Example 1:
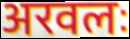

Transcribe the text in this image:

अरवलः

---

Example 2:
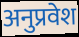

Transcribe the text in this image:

अनुप्रवेश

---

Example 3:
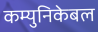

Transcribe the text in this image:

कम्युनिकेबल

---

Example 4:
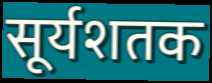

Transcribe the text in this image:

सूर्यशतक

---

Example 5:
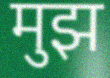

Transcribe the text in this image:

मुझ